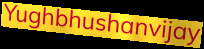
Yughbhushanvijay